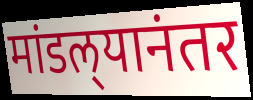
मांडल्यानंतर